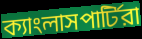
ক্যাংলাসপার্টিরা